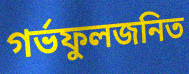
গর্ভফুলজনিত